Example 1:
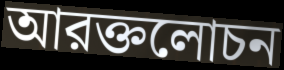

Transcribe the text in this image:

আরক্তলোচন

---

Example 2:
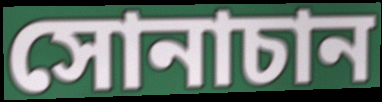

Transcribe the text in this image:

সোনাচান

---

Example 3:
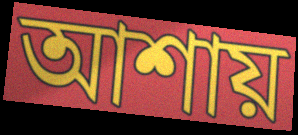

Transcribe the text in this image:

আশায়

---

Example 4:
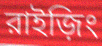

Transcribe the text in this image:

রাইজ়িং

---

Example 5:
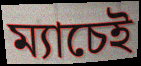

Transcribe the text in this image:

ম্যাচেই